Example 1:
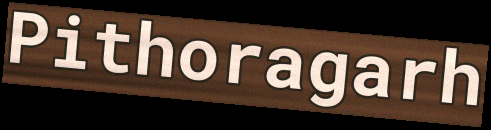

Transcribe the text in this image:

Pithoragarh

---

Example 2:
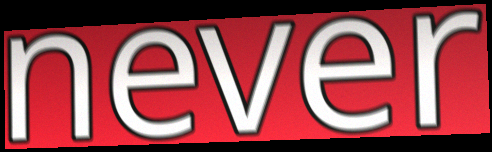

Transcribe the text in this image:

never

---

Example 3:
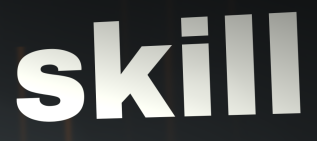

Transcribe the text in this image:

skill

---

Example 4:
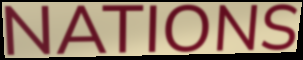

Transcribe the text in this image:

NATIONS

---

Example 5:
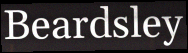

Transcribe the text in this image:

Beardsley